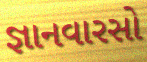
જ્ઞાનવારસો